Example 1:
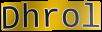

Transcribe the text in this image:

Dhrol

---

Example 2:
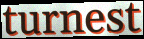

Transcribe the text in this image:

turnest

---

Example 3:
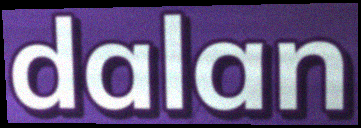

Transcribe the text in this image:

dalan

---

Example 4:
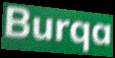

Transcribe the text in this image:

Burqa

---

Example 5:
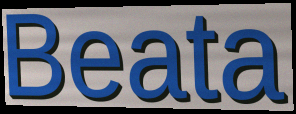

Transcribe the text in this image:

Beata